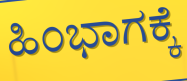
ಹಿಂಭಾಗಕ್ಕೆ